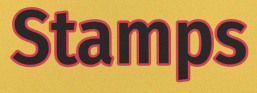
Stamps